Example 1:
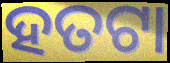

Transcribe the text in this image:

ହତଟା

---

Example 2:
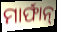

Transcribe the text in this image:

ମାର୍ଫାନ୍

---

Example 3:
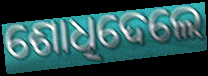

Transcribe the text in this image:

ଶୋଧିଦେଲେ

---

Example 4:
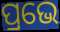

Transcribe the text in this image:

ପ୍ରଭେ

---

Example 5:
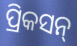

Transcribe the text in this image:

ପ୍ରିକସନ୍